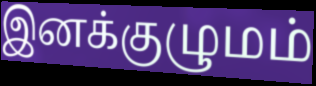
இனக்குழுமம்